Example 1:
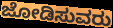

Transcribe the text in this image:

ಜೋಡಿಸುವರು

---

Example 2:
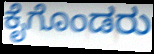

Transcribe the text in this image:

ಕೈಗೊಂಡರು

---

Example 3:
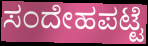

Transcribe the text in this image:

ಸಂದೇಹಪಟ್ಟೆ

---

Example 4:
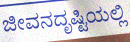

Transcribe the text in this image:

ಜೀವನದೃಷ್ಟಿಯಲ್ಲಿ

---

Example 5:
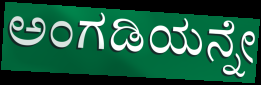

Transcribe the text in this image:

ಅಂಗಡಿಯನ್ನೇ